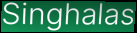
Singhalas